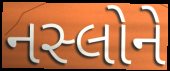
નસ્લોને